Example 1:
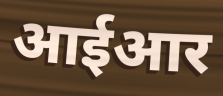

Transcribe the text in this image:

आईआर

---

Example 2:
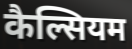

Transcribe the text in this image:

कैल्सियम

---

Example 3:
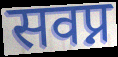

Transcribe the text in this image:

सवप्न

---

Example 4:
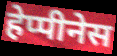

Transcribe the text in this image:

हेप्पीनेस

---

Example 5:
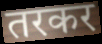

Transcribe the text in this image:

तरकर